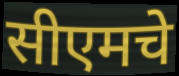
सीएमचे